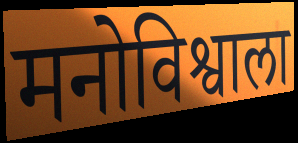
मनोविश्वाला